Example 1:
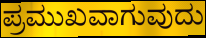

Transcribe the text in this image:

ಪ್ರಮುಖವಾಗುವುದು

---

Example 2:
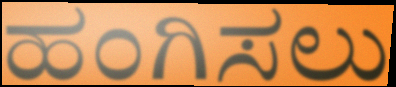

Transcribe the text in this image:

ಹಂಗಿಸಲು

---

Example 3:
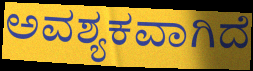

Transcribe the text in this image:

ಅವಶ್ಯಕವಾಗಿದೆ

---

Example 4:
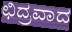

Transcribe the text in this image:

ಛಿದ್ರವಾದ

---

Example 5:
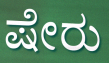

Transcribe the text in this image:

ಷೇರು